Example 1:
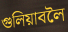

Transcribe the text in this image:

গুলিয়াবলৈ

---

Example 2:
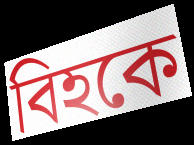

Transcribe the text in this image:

বিহকে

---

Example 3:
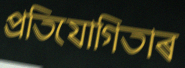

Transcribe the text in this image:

প্ৰতিযোগিতাৰ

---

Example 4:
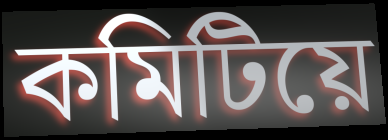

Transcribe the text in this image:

কমিটিয়ে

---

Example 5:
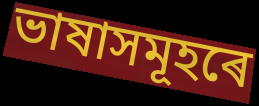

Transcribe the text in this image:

ভাষাসমূহৰে